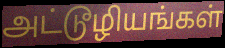
அட்டூழியங்கள்